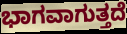
ಭಾಗವಾಗುತ್ತದೆ